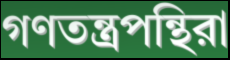
গণতন্ত্রপন্থিরা